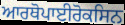
ਆਰਥੋਪਾਈਰੋਕਸਿਨ